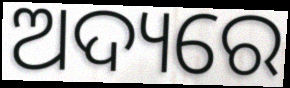
ଅଦ୍ୟରେ